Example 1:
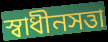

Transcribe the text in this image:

স্বাধীনসত্তা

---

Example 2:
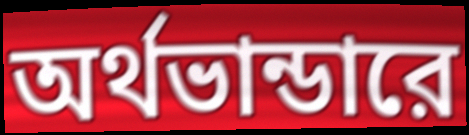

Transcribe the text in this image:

অর্থভান্ডারে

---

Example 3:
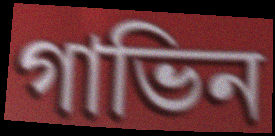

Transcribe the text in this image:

গাভিন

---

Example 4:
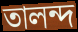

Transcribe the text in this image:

তালন্দ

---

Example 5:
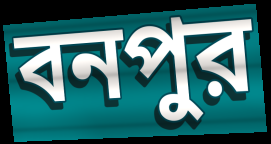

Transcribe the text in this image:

বনপুর